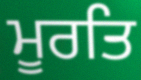
ਮੂਰਤਿ